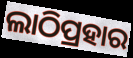
ଲାଠିପ୍ରହାର